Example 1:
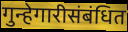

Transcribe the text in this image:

गुन्हेगारीसंबंधित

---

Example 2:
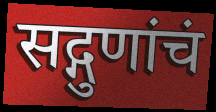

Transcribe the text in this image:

सद्गुणांचं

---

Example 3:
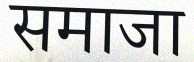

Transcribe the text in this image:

समाजा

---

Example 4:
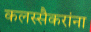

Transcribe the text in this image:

कलस्सैकरांना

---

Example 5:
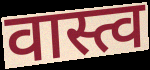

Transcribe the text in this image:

वास्त्व